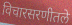
विचारसरणीतले